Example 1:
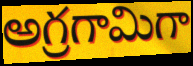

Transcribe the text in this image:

అగ్రగామిగా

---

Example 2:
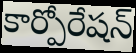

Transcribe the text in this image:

కార్పోరేషన్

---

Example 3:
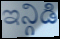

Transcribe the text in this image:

ఇన్గిడి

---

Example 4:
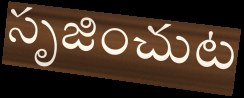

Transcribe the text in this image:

సృజించుట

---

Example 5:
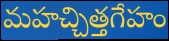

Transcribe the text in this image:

మహచ్చిత్తగేహం